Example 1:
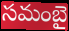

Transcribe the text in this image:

సమంబై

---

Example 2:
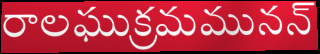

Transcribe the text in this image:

రాలఘుక్రమమునన్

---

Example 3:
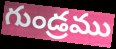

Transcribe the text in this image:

గుండ్రము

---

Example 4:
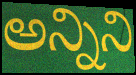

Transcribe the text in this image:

అన్నిని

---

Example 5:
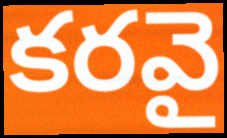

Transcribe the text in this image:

కరవై